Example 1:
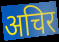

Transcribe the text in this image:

अचिर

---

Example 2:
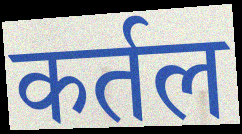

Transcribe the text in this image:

कर्तल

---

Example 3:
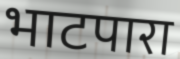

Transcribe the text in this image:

भाटपारा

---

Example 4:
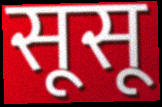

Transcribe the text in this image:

सूसू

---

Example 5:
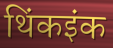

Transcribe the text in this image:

थिंकइंक